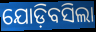
ଯୋଡ଼ିବସିଲା